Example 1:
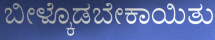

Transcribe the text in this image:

ಬೀಳ್ಕೊಡಬೇಕಾಯಿತು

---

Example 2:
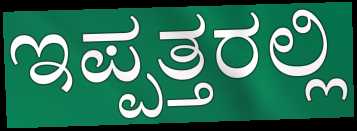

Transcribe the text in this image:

ಇಪ್ಪತ್ತರಲ್ಲಿ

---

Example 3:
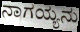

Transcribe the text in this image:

ನಾಗಯ್ಯನು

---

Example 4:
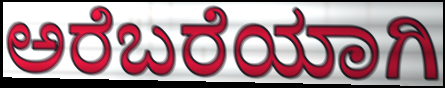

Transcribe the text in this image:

ಅರೆಬರೆಯಾಗಿ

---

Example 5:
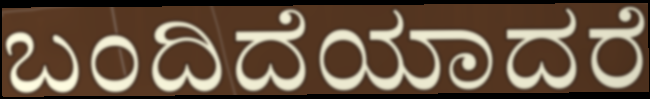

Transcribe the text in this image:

ಬಂದಿದೆಯಾದರೆ